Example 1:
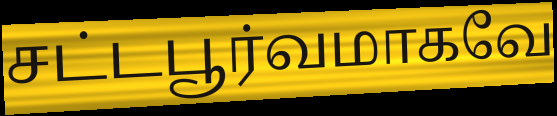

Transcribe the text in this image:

சட்டபூர்வமாகவே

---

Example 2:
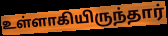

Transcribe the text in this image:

உள்ளாகியிருந்தார்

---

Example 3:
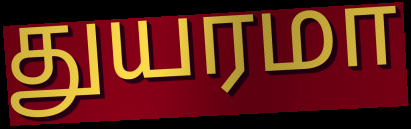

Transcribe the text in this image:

துயரமா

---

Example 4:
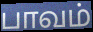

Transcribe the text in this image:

பாவம்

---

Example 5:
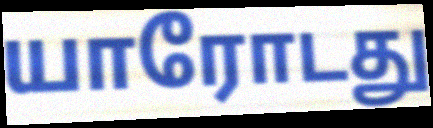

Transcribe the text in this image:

யாரோடது